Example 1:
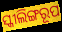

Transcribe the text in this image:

ସ୍କୀଲିଙ୍ଗରୂପ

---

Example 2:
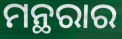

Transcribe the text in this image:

ମନ୍ଥରାର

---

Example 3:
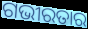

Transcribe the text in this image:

ଗଭୀରତାର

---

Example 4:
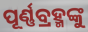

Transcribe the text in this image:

ପୂର୍ଣ୍ଣବ୍ରହ୍ମଙ୍କୁ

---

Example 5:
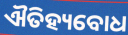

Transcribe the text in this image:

ଐତିହ୍ୟବୋଧ